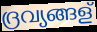
ദ്രവ്യങ്ങള്